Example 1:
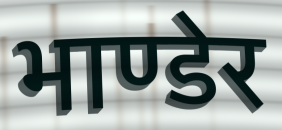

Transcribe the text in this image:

भाण्डेर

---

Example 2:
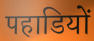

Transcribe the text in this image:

पहाडियों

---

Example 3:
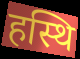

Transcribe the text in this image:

हस्थि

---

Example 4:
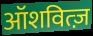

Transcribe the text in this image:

ऑशवित्ज़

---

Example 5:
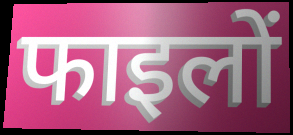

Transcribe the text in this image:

फाइलों